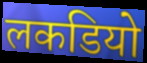
लकडियो